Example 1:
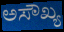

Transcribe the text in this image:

ಅಸೌಖ್ಯ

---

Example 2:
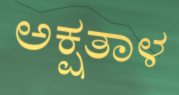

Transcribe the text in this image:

ಅಕ್ಷತಾಳ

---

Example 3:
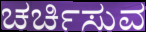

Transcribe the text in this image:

ಚರ್ಚಿಸುವ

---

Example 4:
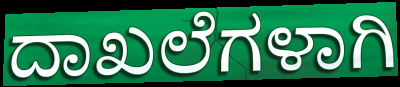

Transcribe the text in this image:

ದಾಖಲೆಗಳಾಗಿ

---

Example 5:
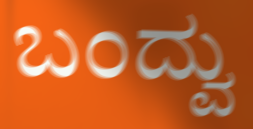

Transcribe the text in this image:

ಬಂದ್ವು